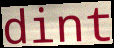
dint